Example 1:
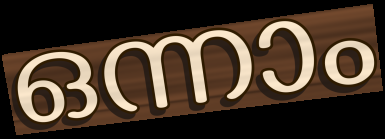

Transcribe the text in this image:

ഒന്നാം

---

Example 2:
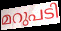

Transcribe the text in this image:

മറുപടി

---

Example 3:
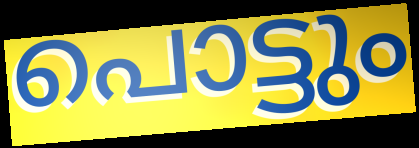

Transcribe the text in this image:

പൊട്ടും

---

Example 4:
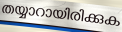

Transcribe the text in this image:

തയ്യാറായിരിക്കുക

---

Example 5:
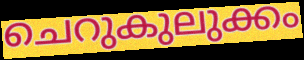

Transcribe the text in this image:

ചെറുകുലുക്കം